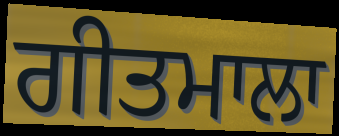
ਗੀਤਮਾਲਾ